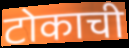
टोकाची